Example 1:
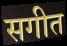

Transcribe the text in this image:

सगीत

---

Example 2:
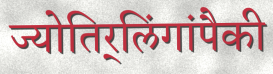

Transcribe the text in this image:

ज्योतिर्लिंगांपैकी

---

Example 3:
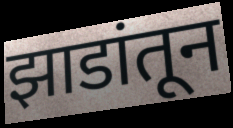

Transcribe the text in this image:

झाडांतून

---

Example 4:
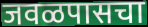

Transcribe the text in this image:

जवळपासचा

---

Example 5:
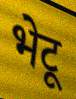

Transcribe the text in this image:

भेटू